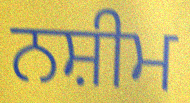
ਨਸ਼ੀਮ